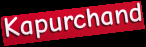
Kapurchand